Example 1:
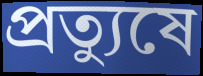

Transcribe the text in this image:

প্রত্যুষে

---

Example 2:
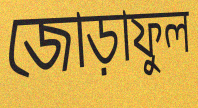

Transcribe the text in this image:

জোড়াফুল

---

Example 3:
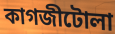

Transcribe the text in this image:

কাগজীটোলা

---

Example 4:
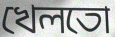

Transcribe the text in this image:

খেলতো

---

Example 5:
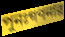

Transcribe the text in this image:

পুনঃগণনার